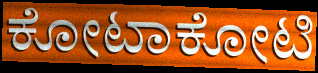
ಕೋಟಾಕೋಟಿ